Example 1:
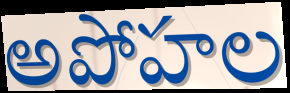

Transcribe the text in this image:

అపోహల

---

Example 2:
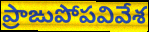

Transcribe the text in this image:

ప్రాఙుపోపవివేశ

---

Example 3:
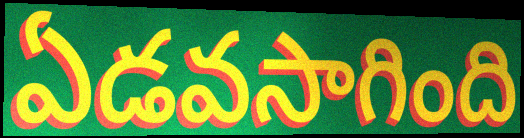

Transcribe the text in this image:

ఏడవసాగింది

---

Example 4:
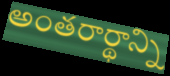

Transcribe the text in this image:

అంతరార్థాన్ని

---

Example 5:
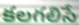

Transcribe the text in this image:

కలగలిసే